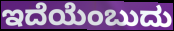
ಇದೆಯೆಂಬುದು